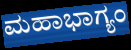
ಮಹಾಭಾಗ್ಯಂ